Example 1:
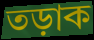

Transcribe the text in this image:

তড়াক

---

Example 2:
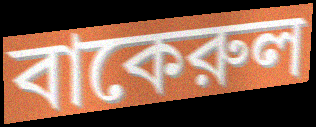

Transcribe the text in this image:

বাকেরুল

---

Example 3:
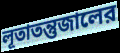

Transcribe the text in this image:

লূতাতন্তুজালের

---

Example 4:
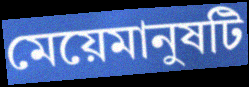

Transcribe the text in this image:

মেয়েমানুষটি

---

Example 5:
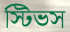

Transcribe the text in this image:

স্টিভস